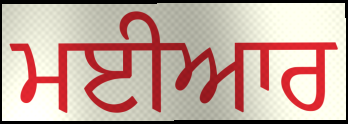
ਮਈਆਰ